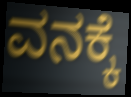
ವನಕ್ಕೆ